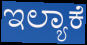
ಇಲ್ಯಾಕೆ